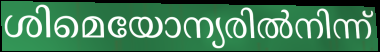
ശിമെയോന്യരിൽനിന്ന്